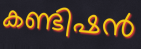
കണ്ടിഷൻ